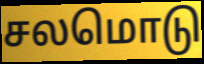
சலமொடு